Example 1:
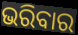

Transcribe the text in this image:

ଭରିବାର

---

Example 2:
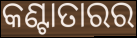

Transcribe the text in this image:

କଣ୍ଟାତାରର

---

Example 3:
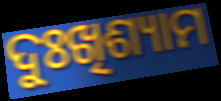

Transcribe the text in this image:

ଦୁଃଖିଶ୍ୟାମ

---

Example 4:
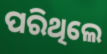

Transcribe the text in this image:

ପରିଥିଲେ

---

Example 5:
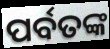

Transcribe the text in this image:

ପର୍ବତଙ୍କ